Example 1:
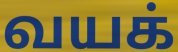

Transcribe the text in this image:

வயக்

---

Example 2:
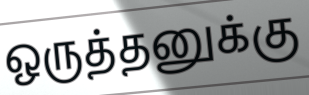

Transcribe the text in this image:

ஒருத்தனுக்கு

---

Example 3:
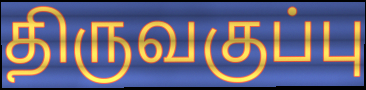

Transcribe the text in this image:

திருவகுப்பு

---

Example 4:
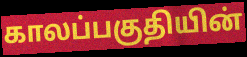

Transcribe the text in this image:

காலப்பகுதியின்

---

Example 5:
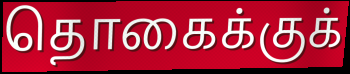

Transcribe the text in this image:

தொகைக்குக்